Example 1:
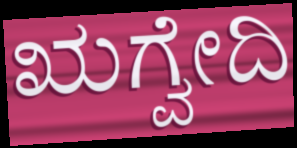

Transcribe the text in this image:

ಋಗ್ವೇದಿ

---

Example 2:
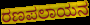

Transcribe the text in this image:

ರಣಪಲಾಯನ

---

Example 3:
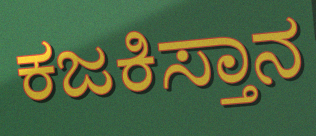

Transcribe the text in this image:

ಕಜಕಿಸ್ತಾನ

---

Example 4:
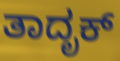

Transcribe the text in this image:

ತಾದೃಕ್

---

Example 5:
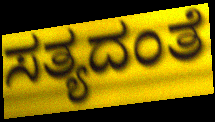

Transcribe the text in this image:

ಸತ್ಯದಂತೆ